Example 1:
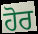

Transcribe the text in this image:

ਹੋਰ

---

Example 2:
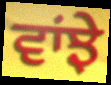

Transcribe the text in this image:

ਵਾਂਝੇ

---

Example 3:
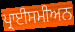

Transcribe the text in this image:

ਪ੍ਰਾਈਸਮੀਅਨ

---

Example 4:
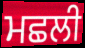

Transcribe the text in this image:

ਮਛਲੀ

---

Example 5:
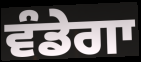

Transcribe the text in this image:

ਵੰਡੇਗਾ